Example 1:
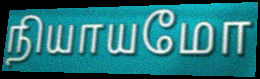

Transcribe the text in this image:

நியாயமோ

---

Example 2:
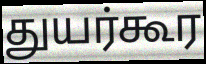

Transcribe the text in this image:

துயர்கூர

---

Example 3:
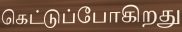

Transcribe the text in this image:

கெட்டுப்போகிறது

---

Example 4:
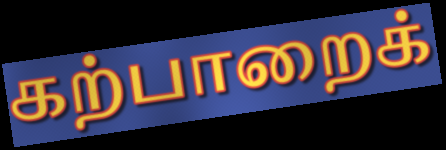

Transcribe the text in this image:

கற்பாறைக்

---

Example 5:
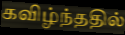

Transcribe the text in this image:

கவிழ்ந்ததில்